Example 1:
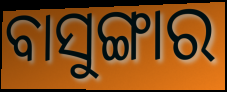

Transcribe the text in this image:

ବାସୁଙ୍ଗାର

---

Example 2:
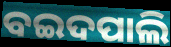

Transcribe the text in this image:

ବଇଦପାଲି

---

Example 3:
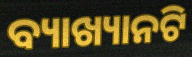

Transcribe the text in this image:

ବ୍ୟାଖ୍ୟାନଟି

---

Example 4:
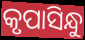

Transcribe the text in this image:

କୃପାସିନ୍ଧୁ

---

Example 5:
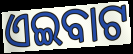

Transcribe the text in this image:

ଏଇବାଟ